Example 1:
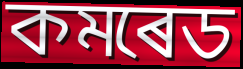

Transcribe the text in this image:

কমৰেড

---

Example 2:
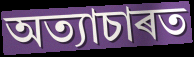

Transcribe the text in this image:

অত্যাচাৰত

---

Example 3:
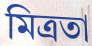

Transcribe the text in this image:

মিত্ৰতা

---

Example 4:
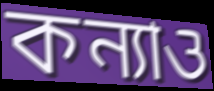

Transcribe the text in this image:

কন্যাও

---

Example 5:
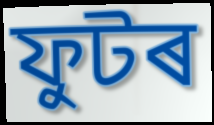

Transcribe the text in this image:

ফুটৰ